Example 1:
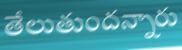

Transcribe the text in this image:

తేలుతుందన్నారు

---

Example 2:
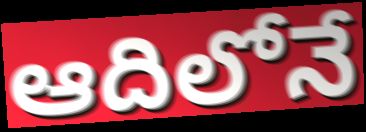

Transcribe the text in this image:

ఆదిలోనే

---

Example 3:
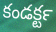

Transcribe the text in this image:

కండక్టర్‍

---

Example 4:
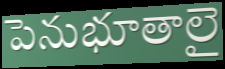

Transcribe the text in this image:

పెనుభూతాలై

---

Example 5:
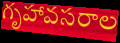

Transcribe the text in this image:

గృహావసరాల